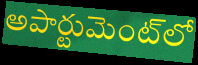
అపార్టుమెంట్‌లో